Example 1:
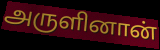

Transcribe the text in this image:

அருளினான்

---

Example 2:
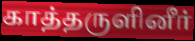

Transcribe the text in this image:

காத்தருளினீர்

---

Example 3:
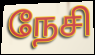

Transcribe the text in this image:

நேசி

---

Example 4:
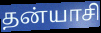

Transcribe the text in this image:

தன்யாசி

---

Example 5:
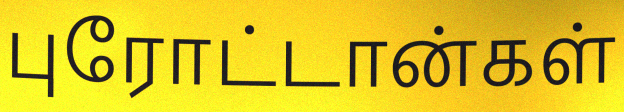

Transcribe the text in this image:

புரோட்டான்கள்